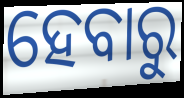
ହେବାରୁ